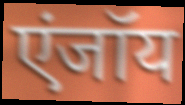
एंजॉय